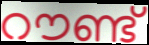
റൗണ്ട്